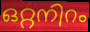
ഒറ്റനിറം